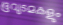
ഭൂവുടമകളും